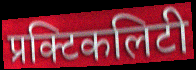
प्रक्टिकलिटी